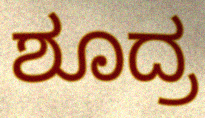
ಶೂದ್ರ